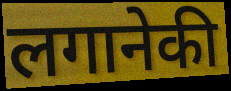
लगानेकी